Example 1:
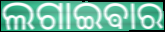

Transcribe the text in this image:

ଲଗାଇଵାର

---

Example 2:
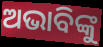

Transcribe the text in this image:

ଅଭାବିଙ୍କୁ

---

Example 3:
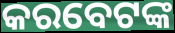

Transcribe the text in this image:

କରବେଟଙ୍କ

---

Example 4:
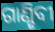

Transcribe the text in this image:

ଗାଣ୍ଡିବୀ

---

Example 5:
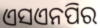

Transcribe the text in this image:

ଏସଏନପିର